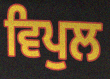
ਵਿਪੁਲ